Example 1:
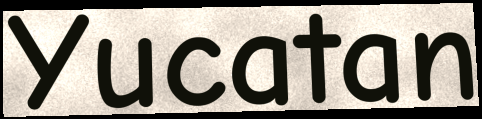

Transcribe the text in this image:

Yucatan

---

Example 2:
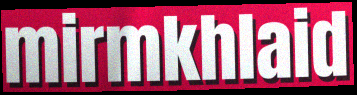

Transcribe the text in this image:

mirmkhlaid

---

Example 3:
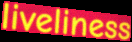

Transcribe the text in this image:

liveliness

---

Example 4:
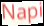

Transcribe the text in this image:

Napi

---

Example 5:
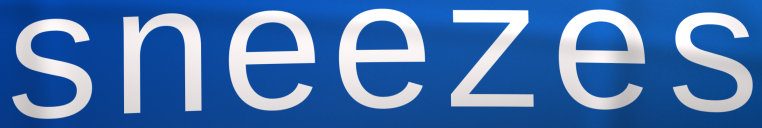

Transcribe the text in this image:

sneezes